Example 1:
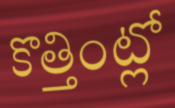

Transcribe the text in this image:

కొత్తింట్లో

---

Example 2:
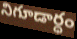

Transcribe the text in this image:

నిగూడార్ధం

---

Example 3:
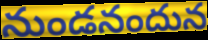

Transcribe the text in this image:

నుండనందున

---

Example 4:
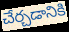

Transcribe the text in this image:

చేర్చడానికి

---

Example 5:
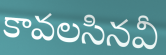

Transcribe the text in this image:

కావలసినవీ